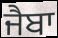
ਜੈਬਾ